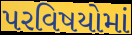
પરવિષયોમાં